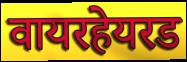
वायरहेयरड